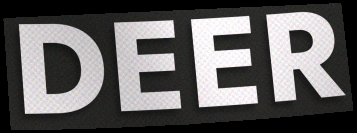
DEER